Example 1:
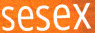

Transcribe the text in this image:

sesex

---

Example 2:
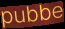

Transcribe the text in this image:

pubbe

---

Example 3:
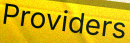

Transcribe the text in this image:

Providers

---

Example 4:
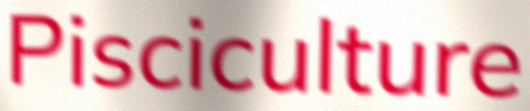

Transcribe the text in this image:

Pisciculture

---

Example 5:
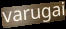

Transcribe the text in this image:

varugai